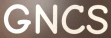
GNCS